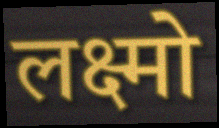
लक्ष्मो